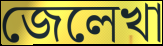
জেলেখা